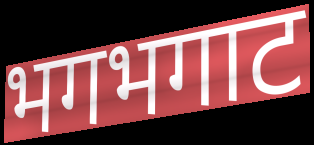
भगभगाट